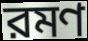
রমণ